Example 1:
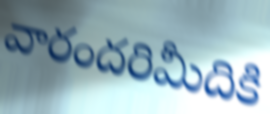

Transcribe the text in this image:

వారందరిమీదికి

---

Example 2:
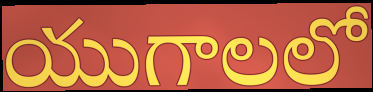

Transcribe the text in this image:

యుగాలలో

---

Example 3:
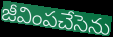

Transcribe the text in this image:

జీవింపచేసెను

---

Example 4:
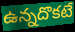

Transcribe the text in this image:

ఉన్నదొకటే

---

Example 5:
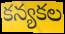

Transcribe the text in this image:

కన్యకల